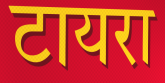
टायरा